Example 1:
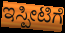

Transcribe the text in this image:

ಇಸ್ಪೀಟಿಗೆ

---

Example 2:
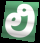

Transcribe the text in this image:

ಲಿ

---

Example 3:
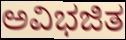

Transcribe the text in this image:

ಅವಿಭಜಿತ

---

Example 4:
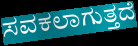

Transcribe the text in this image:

ಸವಕಲಾಗುತ್ತದೆ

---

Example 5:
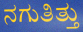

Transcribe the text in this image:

ನಗುತಿತ್ತು